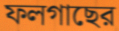
ফলগাছের